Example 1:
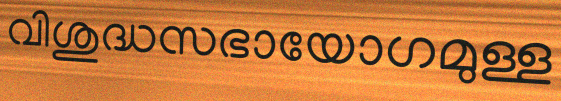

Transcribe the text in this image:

വിശുദ്ധസഭായോഗമുള്ള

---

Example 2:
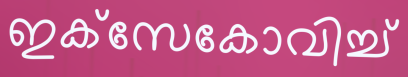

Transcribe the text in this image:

ഇക്‌സേകോവിച്ച്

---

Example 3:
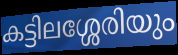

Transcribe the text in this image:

കട്ടിലശ്ശേരിയും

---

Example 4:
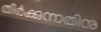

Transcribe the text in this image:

തീർക്കുന്നതിനു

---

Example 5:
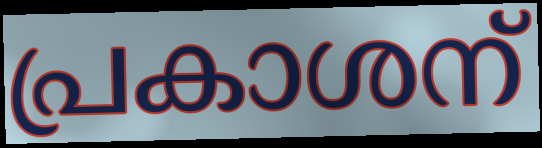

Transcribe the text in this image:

പ്രകാശന്